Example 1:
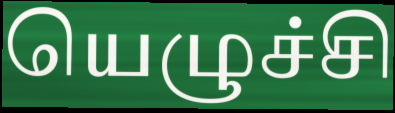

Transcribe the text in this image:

யெழுச்சி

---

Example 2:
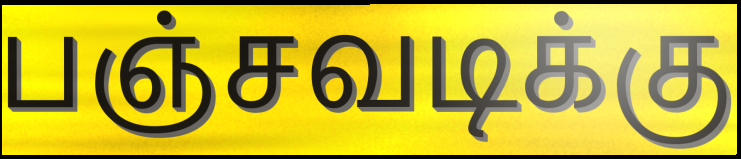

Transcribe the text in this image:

பஞ்சவடிக்கு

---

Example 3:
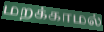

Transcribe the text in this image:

மறக்காமல்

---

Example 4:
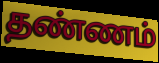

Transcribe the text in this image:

தண்ணம்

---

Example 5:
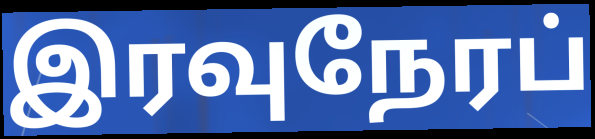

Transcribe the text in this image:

இரவுநேரப்